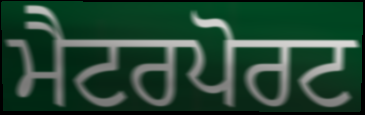
ਮੈਟਰਪੋਰਟ